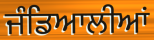
ਜੰਡਿਆਲੀਆਂ